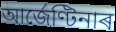
আৰ্জেণ্টিনাৰ